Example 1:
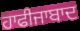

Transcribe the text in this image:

ਹਾਫੀਜਾਬਾਦ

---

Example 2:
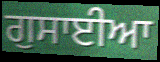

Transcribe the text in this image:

ਗੁਸਾਈਆ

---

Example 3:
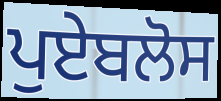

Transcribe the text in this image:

ਪੁਏਬਲੋਸ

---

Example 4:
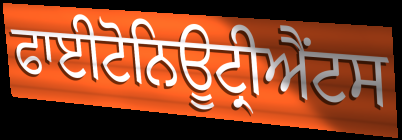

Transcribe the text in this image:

ਫਾਈਟੋਨਿਊਟ੍ਰੀਐਂਟਸ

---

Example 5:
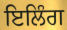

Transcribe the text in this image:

ਇਲਿੰਗ